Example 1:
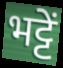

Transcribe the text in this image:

भट्टें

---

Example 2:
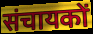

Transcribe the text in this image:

संचायकों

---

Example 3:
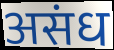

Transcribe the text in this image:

असंध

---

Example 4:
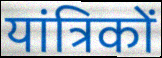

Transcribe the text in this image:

यांत्रिकों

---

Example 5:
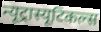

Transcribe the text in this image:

न्यूट्रास्यूटिकल्स